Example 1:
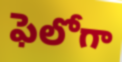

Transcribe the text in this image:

ఫెలోగా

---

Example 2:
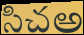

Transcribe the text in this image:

సిచఅ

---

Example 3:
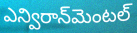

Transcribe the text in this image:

ఎన్విరాన్‌మెంటల్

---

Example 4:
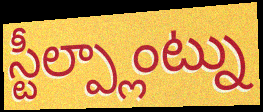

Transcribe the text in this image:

స్టీల్ప్లాంట్ను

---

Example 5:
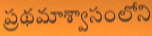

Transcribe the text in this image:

ప్రథమాశ్వాసంలోని